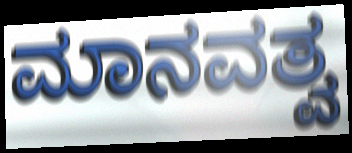
ಮಾನವತ್ವ